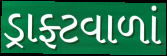
ડ્રાફ્ટવાળાં